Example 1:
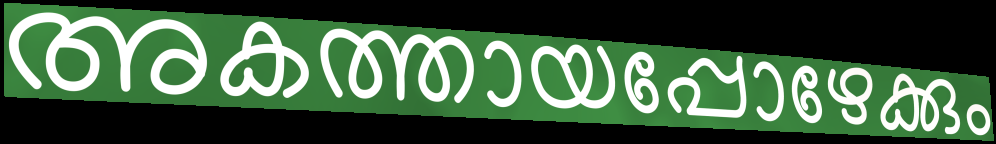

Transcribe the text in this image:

അകത്തായപ്പോഴേക്കും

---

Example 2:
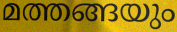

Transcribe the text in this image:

മത്തങ്ങയും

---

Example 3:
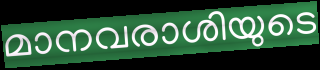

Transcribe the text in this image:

മാനവരാശിയുടെ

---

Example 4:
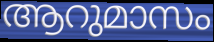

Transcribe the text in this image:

ആറുമാസം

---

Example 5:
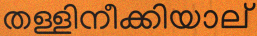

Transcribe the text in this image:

തള്ളിനീക്കിയാല്